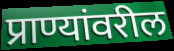
प्राण्यांवरील